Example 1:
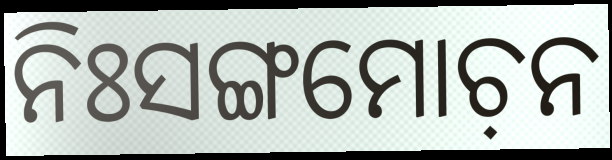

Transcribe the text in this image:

ନିଃସଙ୍ଗମୋଚ଼ନ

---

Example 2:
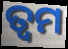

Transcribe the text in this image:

ତ୍ୱମ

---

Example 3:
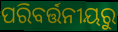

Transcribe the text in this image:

ପରିବର୍ତ୍ତନୀୟରୁ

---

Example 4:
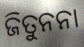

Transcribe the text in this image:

ଜିତୁନନା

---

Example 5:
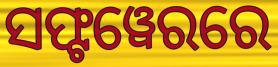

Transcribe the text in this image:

ସଫ୍ଟୱେରରେ